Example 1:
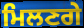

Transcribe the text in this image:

ਮਿਲਣਗੇ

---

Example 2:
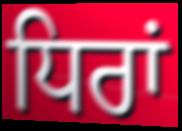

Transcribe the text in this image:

ਧਿਰਾਂ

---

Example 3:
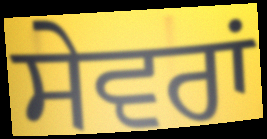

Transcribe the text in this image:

ਸੇਵਰਾਂ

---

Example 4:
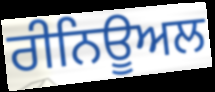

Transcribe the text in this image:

ਰੀਨਿਊਅਲ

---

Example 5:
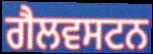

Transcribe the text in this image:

ਗੈਲਵਸਟਨ